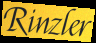
Rinzler